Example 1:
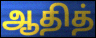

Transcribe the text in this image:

ஆதித்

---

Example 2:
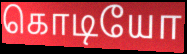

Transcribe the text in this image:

கொடியோ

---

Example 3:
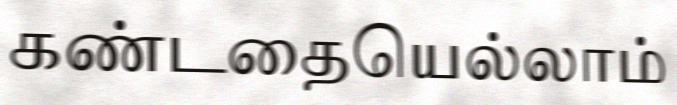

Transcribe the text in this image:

கண்டதையெல்லாம்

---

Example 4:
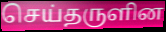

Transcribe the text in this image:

செய்தருளின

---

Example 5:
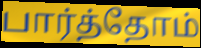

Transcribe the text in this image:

பார்த்தோம்